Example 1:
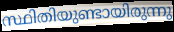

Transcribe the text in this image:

സ്ഥിതിയുണ്ടായിരുന്നു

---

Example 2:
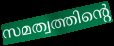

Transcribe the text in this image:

സമത്വത്തിന്റെ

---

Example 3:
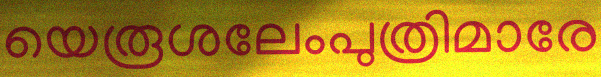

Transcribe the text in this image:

യെരൂശലേംപുത്രിമാരേ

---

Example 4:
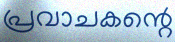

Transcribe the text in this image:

പ്രവാചകന്റെ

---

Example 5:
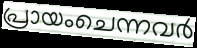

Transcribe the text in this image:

പ്രായംചെന്നവർ